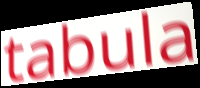
tabula